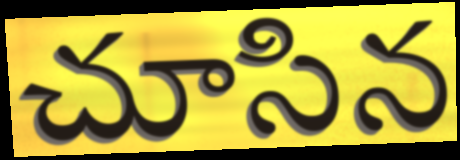
చూసిన